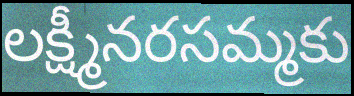
లక్ష్మీనరసమ్మకు